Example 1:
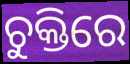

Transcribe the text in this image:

ଚୁକ୍ତିରେ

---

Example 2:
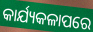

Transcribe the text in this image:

କାର୍ଯ୍ୟକଳାପରେ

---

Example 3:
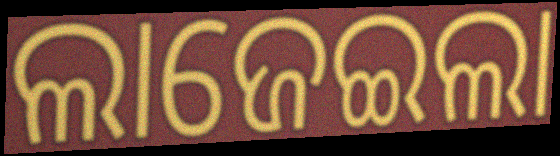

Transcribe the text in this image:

ଲାଜେଇଲା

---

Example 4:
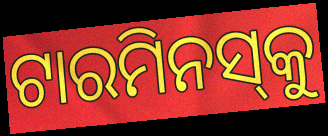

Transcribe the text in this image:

ଟାରମିନସ୍‌କୁ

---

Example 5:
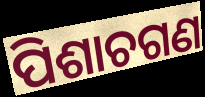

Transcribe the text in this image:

ପିଶାଚଗଣ